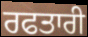
ਰਫਤਾਰੀ